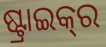
ଷ୍ଟ୍ରାଇକ୍‍ର